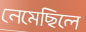
নেমেছিলে